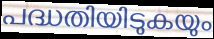
പദ്ധതിയിടുകയും